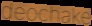
deochake